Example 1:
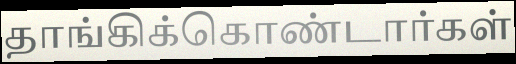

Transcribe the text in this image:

தாங்கிக்கொண்டார்கள்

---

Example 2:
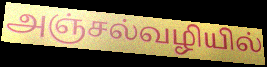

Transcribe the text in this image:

அஞ்சல்வழியில்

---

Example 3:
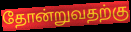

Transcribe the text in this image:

தோன்றுவதற்கு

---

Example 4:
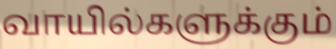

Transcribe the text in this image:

வாயில்களுக்கும்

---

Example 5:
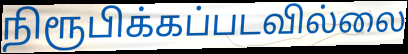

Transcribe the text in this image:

நிரூபிக்கப்படவில்லை